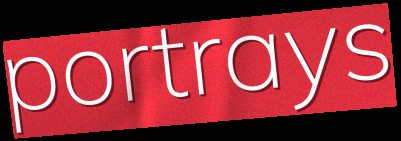
portrays